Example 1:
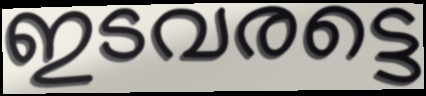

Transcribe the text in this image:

ഇടവരട്ടെ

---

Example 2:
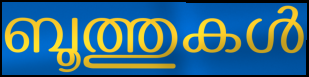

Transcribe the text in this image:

ബൂത്തുകൾ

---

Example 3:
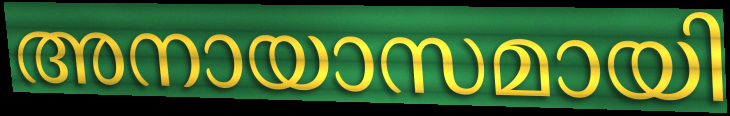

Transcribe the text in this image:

അനായാസമായി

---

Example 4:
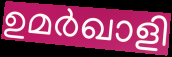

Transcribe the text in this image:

ഉമർഖാളി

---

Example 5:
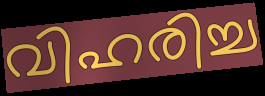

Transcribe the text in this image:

വിഹരിച്ച